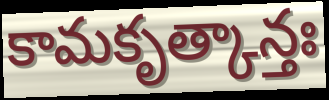
కామకృత్కాన్తః